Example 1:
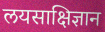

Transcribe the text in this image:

लयसाक्षिज्ञान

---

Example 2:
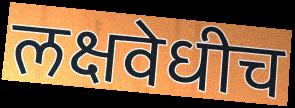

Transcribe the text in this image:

लक्षवेधीच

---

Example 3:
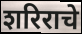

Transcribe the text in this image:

शरिराचे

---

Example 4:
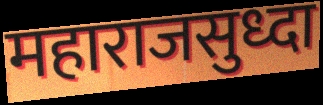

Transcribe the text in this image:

महाराजसुध्दा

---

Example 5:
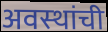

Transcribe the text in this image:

अवस्थांची